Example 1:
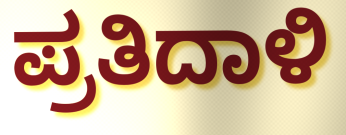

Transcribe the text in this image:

ಪ್ರತಿದಾಳಿ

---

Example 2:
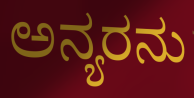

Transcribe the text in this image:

ಅನ್ಯರನು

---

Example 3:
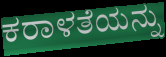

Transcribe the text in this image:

ಕರಾಳತೆಯನ್ನು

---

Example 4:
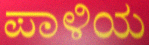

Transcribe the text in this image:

ಪಾಳಿಯ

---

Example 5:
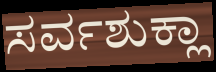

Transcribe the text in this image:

ಸರ್ವಶುಕ್ಲಾ